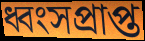
ধ্বংসপ্ৰাপ্ত